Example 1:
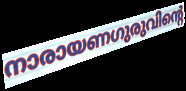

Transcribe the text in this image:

നാരായണഗുരുവിന്റെ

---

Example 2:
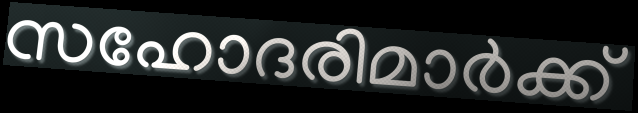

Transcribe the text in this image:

സഹോദരിമാർക്ക്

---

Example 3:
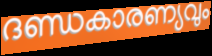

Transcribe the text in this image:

ദണ്ഡകാരണ്യവും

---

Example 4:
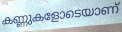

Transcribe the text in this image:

കണ്ണുകളോടെയാണ്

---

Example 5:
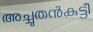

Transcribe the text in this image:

അച്ചുതൻകുട്ടീ